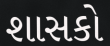
શાસકો